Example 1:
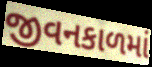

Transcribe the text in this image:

જીવનકાળમાં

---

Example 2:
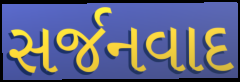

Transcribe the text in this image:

સર્જનવાદ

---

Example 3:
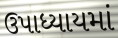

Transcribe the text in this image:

ઉપાધ્યાયમાં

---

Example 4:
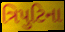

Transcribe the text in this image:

ત્રિપુટિના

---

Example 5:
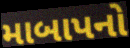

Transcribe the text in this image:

માબાપનો